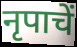
नृपाचें